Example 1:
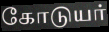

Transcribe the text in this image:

கோடுயர்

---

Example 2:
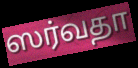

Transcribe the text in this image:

ஸர்வதா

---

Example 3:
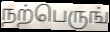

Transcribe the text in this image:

நற்பெருங்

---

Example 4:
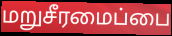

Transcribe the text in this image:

மறுசீரமைப்பை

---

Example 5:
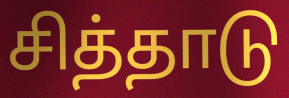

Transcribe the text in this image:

சித்தாடு